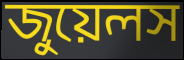
জুয়েলস